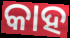
କାହ